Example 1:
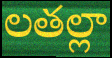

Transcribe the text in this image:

లతల్లా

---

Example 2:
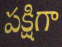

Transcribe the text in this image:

పక్షిగా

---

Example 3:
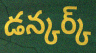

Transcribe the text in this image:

డన్కర్క్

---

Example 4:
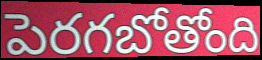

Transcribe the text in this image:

పెరగబోతోంది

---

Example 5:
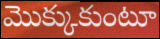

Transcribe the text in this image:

మొక్కుకుంటూ